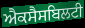
ਐਕਸੈਸਬਿਲਟੀ